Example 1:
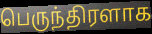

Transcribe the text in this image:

பெருந்திரளாக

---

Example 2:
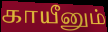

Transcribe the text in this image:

காயீனும்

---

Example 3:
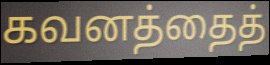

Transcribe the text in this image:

கவனத்தைத்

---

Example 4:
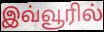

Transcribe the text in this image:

இவ்வூரில்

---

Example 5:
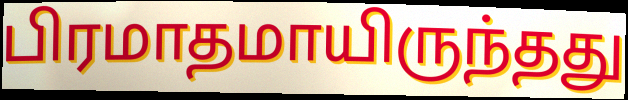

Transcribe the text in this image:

பிரமாதமாயிருந்தது